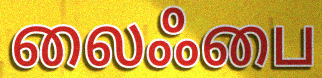
லைஃபை